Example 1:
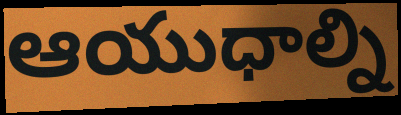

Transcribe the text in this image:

ఆయుధాల్ని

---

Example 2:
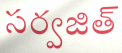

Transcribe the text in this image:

సర్వజిత్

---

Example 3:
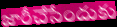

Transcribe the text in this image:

జారీచేసేందుకు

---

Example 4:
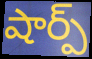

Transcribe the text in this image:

షార్ప్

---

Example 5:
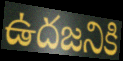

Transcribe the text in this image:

ఉదజనికి